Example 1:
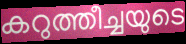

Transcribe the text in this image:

കറുത്തീച്ചയുടെ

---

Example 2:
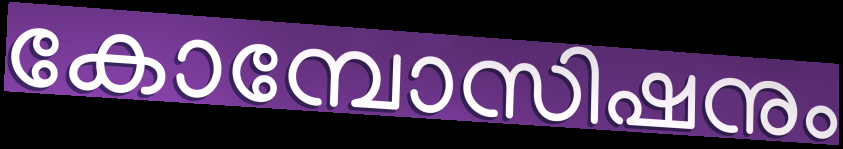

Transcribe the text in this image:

കോമ്പോസിഷനും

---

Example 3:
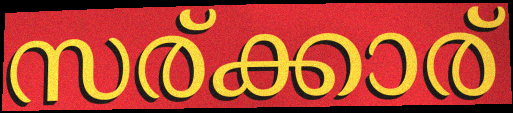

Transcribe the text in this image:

സര്ക്കാര്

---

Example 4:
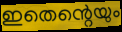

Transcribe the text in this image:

ഇതെന്റെയും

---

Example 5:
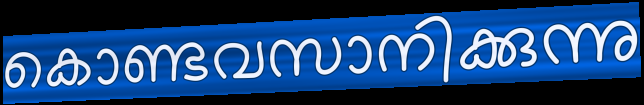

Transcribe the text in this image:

കൊണ്ടവസാനിക്കുന്നു